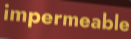
impermeable